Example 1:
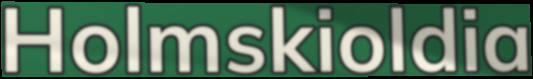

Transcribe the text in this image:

Holmskioldia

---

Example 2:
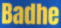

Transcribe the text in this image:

Badhe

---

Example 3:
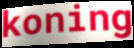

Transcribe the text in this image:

koning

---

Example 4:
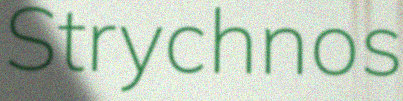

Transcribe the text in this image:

Strychnos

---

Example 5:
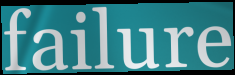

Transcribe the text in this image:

failure